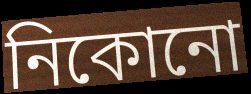
নিকোনো